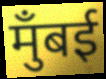
मुँबई